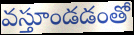
వస్తూండడంతో